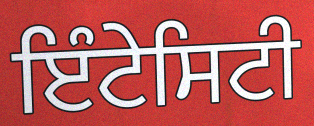
ਇੰਟੇਸਿਟੀ